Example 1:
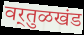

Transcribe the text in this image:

वर्तुळखंड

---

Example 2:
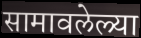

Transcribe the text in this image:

सामावलेल्या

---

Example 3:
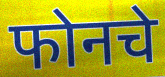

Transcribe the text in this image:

फोनचे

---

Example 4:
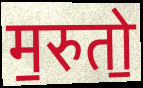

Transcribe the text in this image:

म॒रुतो॒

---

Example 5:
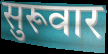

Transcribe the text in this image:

सुरूवार